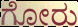
ಗೋರು